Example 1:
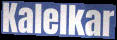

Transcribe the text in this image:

Kalelkar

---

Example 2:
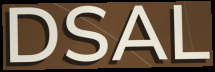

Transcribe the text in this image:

DSAL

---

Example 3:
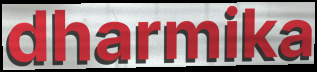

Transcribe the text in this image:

dharmika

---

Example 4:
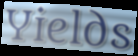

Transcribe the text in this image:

Yields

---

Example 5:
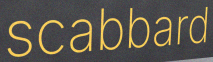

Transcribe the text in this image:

scabbard